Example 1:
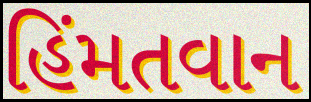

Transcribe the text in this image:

હિંમતવાન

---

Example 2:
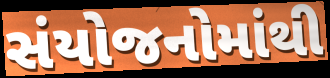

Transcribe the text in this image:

સંયોજનોમાંથી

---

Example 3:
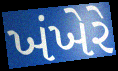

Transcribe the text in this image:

ખંખેરે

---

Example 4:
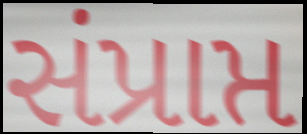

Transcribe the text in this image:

સંપ્રાપ્ત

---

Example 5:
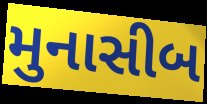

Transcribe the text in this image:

મુનાસીબ